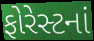
ફોરેસ્ટનાં